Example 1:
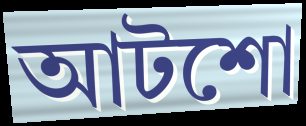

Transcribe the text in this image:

আটশো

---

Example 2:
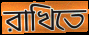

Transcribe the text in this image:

রাখিতে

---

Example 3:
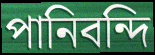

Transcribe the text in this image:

পানিবন্দি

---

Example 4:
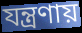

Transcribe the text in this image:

যন্ত্রণায়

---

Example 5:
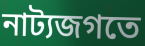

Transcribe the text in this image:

নাট্যজগতে